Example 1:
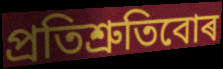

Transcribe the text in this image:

প্ৰতিশ্ৰুতিবোৰ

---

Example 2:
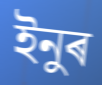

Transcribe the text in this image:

ইনুৰ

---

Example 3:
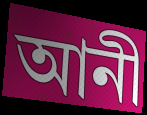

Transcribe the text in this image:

আনী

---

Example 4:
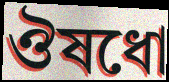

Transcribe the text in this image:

ঔষধো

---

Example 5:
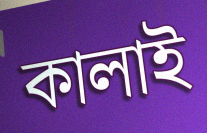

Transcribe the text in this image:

কালাই